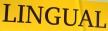
LINGUAL